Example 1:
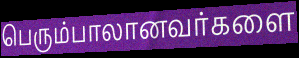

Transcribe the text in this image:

பெரும்பாலானவர்களை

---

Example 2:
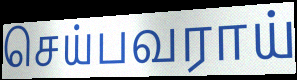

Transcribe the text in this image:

செய்பவராய்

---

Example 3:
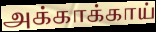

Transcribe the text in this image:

அக்காக்காய்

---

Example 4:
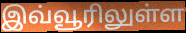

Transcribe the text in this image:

இவ்வூரிலுள்ள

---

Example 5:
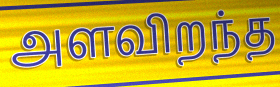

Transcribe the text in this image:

அளவிறந்த